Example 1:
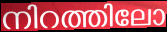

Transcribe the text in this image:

നിറത്തിലോ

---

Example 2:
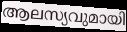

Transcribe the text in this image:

ആലസ്യവുമായി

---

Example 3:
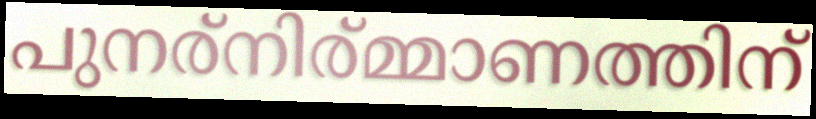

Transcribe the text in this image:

പുനര്നിര്മ്മാണത്തിന്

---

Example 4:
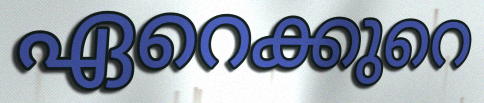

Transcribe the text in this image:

ഏറെക്കുറെ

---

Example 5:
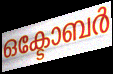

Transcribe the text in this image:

ഒക്ടോബർ